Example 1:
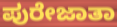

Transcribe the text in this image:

ಪುರೇಜಾತಾ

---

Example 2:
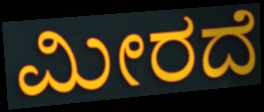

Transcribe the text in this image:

ಮೀರದೆ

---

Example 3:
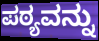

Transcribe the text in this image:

ಪಠ್ಯವನ್ನು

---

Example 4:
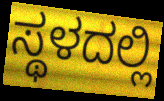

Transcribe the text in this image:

ಸ್ಥಳದಲ್ಲಿ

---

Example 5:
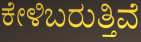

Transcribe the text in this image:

ಕೇಳಿಬರುತ್ತಿವೆ